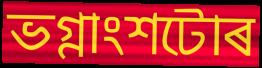
ভগ্নাংশটোৰ